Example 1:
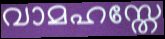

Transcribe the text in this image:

വാമഹസ്തേ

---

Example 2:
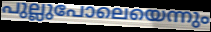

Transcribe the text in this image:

പുല്ലുപോലെയെന്നും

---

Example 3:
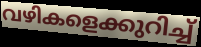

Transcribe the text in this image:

വഴികളെക്കുറിച്ച്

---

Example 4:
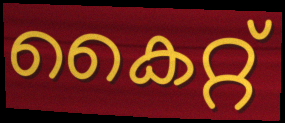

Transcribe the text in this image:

കൈറ്റ്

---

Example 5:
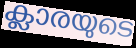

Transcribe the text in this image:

ക്ലാരയുടെ